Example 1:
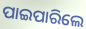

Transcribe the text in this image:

ପାଇପାରିଲେ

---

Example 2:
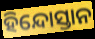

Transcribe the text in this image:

ହିନ୍ଦୋସ୍ତାନ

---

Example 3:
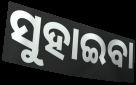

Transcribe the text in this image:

ସୁହାଇବା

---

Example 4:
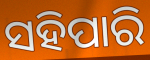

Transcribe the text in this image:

ସହିପାରି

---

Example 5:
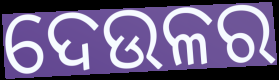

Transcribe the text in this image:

ଦେଉଳର